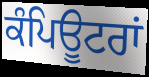
ਕੰਪਿਊਟਰਾਂ